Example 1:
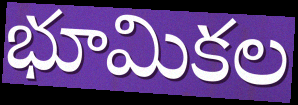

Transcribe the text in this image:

భూమికల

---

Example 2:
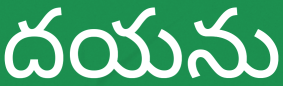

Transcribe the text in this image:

దయను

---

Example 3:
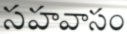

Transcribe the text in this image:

సహవాసం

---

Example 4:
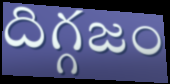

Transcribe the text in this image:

దిగ్గజం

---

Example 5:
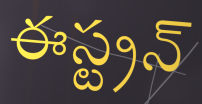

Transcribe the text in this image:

ఈస్ట్రన్